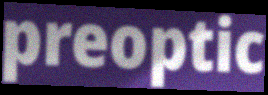
preoptic